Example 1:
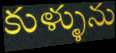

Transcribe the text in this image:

కుళ్ళును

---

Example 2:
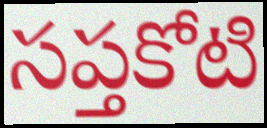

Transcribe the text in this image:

సప్తకోటి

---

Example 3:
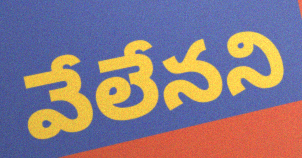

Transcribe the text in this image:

వేలేనని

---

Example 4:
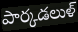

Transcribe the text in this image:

పార్కడలుళ్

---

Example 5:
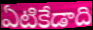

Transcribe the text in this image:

ఏటికేడాది